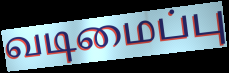
வடிமைப்பு